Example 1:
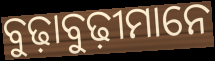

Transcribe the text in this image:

ବୁଢ଼ାବୁଢ଼ୀମାନେ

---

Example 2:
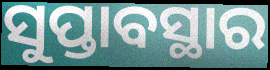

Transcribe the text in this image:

ସୁପ୍ତାବସ୍ଥାର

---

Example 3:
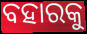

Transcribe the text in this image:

ବହାରକୁ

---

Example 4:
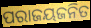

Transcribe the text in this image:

ପରାଜୟଜନିତ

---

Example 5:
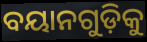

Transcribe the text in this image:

ବୟାନଗୁଡ଼ିକୁ